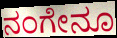
ನಂಗೇನೂ